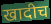
खादीच